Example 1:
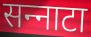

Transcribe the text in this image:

सन्‍नाटा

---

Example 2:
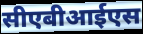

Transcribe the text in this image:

सीएबीआईएस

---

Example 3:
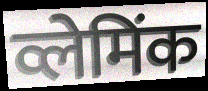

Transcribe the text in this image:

व्लेमिंक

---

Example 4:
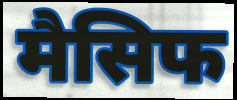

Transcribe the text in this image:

मैसिफ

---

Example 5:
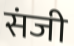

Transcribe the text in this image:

संजी